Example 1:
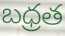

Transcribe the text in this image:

బధ్రత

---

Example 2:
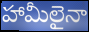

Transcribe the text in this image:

హామీలైనా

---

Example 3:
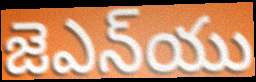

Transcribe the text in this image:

జెఎన్‌యు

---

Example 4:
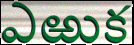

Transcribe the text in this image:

ఎఱుక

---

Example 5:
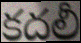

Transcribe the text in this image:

కదలీ